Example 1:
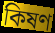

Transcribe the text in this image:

কিষণ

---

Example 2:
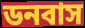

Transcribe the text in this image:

ডনবাস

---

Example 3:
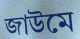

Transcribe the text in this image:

জাউমে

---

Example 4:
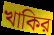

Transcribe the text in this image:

খাকির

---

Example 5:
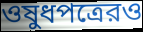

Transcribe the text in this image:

ওষুধপত্রেরও